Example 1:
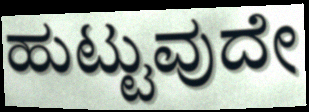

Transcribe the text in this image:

ಹುಟ್ಟುವುದೇ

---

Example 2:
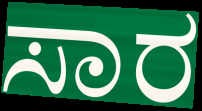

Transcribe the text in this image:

ಸಾರ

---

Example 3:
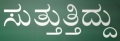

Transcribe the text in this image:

ಸುತ್ತುತ್ತಿದ್ದು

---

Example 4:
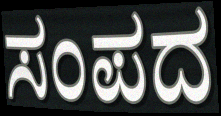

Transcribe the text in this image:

ಸಂಪದ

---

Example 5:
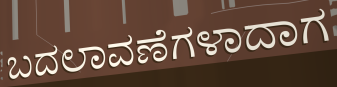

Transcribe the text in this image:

ಬದಲಾವಣೆಗಳಾದಾಗ